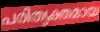
പരിത്യക്തമായ